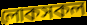
লোকসকল